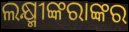
ଲକ୍ଷ୍ମୀଙ୍କରାଙ୍କର